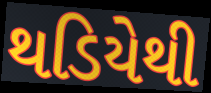
થડિયેથી